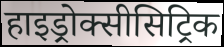
हाइड्रोक्सीसिट्रिक